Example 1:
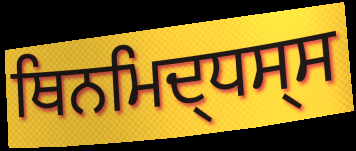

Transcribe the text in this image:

ਥਿਨਮਿਦ੍ਧਸ੍ਸ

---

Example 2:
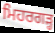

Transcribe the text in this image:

ਮਿਹਰਗੜ੍ਹ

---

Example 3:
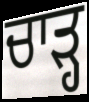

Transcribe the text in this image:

ਚਾਡ਼੍ਹ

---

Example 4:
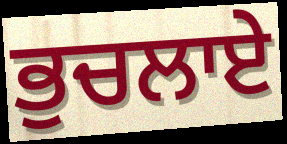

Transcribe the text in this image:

ਭੁਚਲਾਏ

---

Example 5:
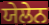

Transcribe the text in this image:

ਯੇਲੇਨ